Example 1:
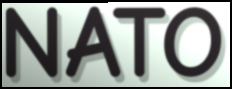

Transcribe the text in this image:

NATO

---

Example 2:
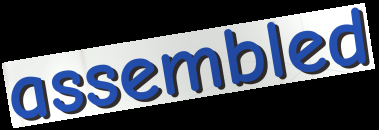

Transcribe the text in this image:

assembled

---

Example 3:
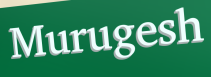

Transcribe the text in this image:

Murugesh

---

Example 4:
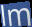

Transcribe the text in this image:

Im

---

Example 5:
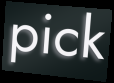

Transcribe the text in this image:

pick